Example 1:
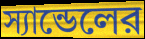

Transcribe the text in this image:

স্যান্ডেলের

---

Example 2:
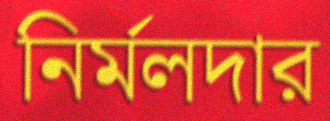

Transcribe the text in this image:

নির্মলদার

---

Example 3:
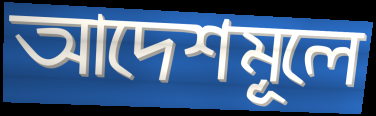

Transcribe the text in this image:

আদেশমূলে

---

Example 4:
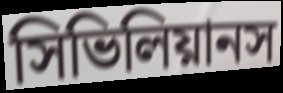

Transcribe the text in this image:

সিভিলিয়ানস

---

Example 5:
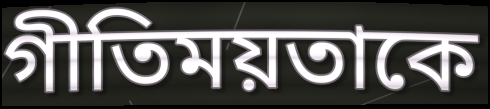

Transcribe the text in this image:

গীতিময়তাকে